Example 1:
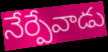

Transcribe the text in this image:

నేర్పేవాడు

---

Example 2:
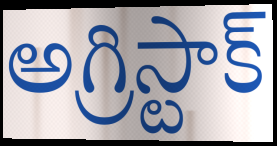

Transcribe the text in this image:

అగ్రిస్టాక్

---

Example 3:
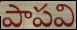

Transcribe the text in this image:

పాపవి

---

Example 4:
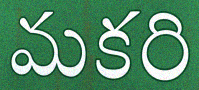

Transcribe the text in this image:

మకరి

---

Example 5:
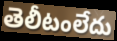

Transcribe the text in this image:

తెలీటంలేదు